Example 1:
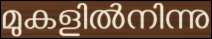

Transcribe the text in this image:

മുകളിൽനിന്നു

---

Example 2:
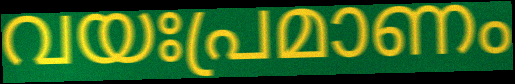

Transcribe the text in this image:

വയഃപ്രമാണം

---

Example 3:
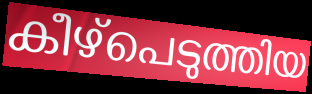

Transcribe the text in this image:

കീഴ്പെടുത്തിയ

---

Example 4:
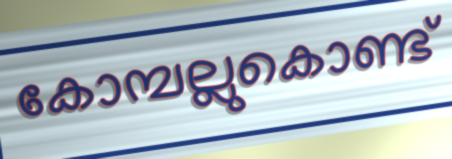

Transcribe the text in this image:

കോമ്പല്ലുകൊണ്ട്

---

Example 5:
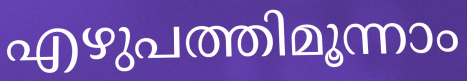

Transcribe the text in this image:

എഴുപത്തിമൂന്നാം